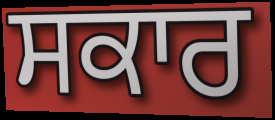
ਸਕਾਰ